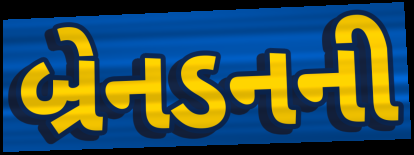
બ્રેનડનની